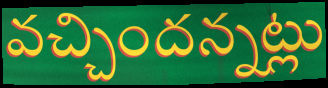
వచ్చిందన్నట్లు